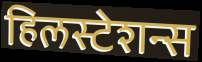
हिलस्टेशन्स